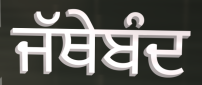
ਜੱਥੇਬੰਦ